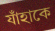
যাঁহাকে